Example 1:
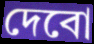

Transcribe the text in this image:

দেবো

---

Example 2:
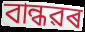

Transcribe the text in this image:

বান্ধৱৰ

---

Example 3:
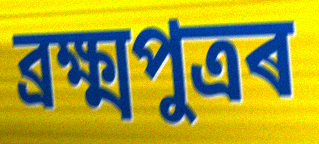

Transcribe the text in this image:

ব্ৰক্ষ্মপুত্ৰৰ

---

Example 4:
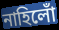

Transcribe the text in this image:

নাহিলোঁ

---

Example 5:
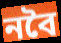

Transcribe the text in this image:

নবৈ